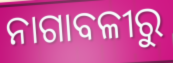
ନାଗାବଳୀରୁ